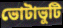
ভোটাভুটি